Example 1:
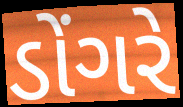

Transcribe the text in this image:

ડોંગરે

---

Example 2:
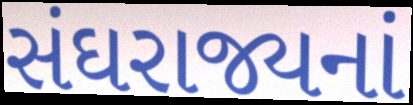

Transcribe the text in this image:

સંઘરાજ્યનાં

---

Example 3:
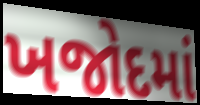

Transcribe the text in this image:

ખજોદમાં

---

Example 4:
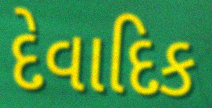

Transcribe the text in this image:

દેવાદિક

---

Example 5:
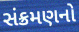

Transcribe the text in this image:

સંક્રમણનો